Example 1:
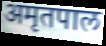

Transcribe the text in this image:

अमृतपाल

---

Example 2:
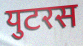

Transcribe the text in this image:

युटरस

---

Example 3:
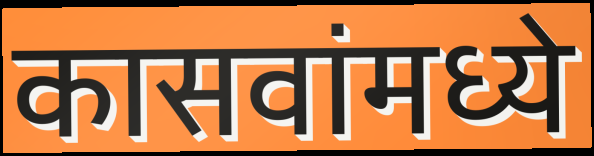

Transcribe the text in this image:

कासवांमध्ये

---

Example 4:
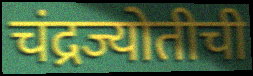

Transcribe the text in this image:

चंद्रज्योतीची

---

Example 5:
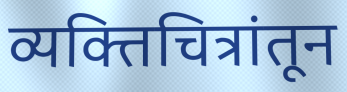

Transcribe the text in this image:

व्यक्तिचित्रांतून